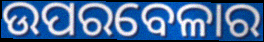
ଉପରବେଳାର